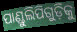
ପାଣ୍ଡୁଲିପିଗୁଡ଼ିକୁ